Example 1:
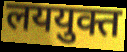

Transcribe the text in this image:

लययुक्त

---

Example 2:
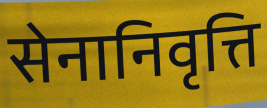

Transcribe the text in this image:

सेनानिवृत्ति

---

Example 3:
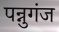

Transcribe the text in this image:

पन्नुगंज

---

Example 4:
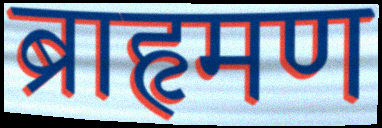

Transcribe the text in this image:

ब्राहृमण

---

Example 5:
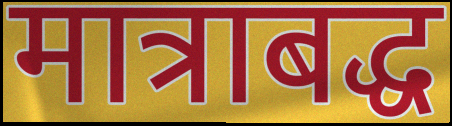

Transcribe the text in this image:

मात्राबद्ध